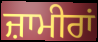
ਜ਼ਾਮੀਰਾਂ